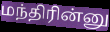
மந்திரின்னு